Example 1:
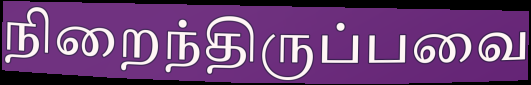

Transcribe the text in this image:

நிறைந்திருப்பவை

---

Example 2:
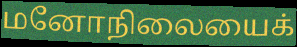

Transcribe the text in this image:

மனோநிலையைக்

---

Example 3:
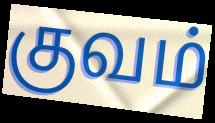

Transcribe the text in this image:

குவம்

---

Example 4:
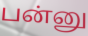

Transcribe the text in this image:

பன்னு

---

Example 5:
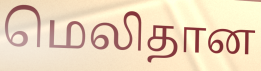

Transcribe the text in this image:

மெலிதான